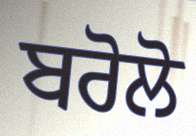
ਬਰੋਲੋ